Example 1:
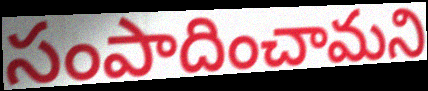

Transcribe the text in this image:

సంపాదించామని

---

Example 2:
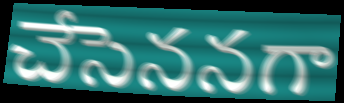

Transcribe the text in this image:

చేసెననగా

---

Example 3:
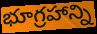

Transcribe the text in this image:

భూగ్రహాన్ని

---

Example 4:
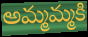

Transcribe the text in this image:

అమ్మమ్మకి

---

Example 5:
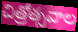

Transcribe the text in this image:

చిత్రోత్సవాల